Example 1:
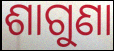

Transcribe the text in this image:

ଶାଗୁଣା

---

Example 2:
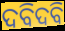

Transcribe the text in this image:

ଦବିଦବି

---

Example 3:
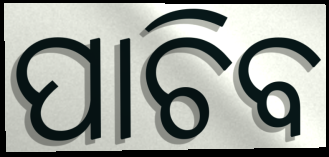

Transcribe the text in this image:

ପାଚିବ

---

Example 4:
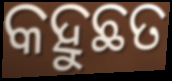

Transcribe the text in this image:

କହୁଛତ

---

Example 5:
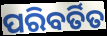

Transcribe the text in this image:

ପରିବର୍ତିତ